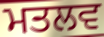
ਮਤਲਵ